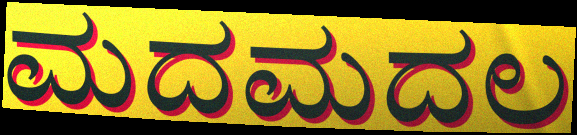
ಮದಮದಲ